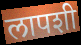
लापशी